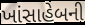
ખાંસાહેબની